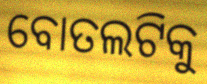
ବୋତଲଟିକୁ